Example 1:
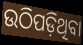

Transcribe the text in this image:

ଉଠିପଡ଼ିଥିବା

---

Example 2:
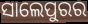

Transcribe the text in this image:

ସାଲେପୁରର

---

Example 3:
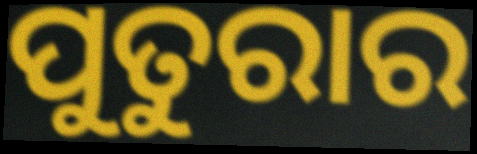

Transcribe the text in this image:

ପୁତୁରାର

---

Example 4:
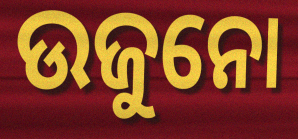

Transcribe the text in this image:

ଉଜୁନୋ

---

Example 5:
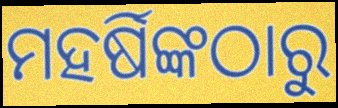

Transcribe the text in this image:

ମହର୍ଷିଙ୍କଠାରୁ